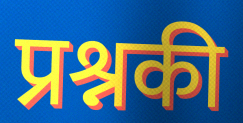
प्रश्नकी